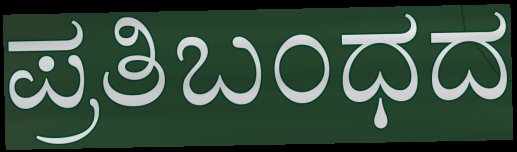
ಪ್ರತಿಬಂಧದ